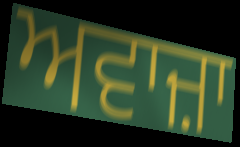
ਅਵਾਜ਼ਾ